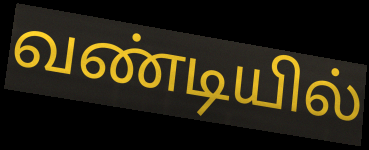
வண்டியில்